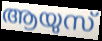
ആയുസ്